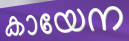
കായേന